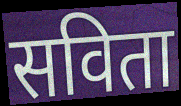
सविता